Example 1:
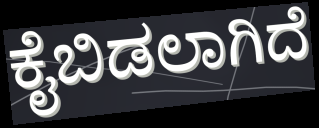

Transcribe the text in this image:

ಕೈಬಿಡಲಾಗಿದೆ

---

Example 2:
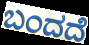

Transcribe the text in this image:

ಬಂದದೆ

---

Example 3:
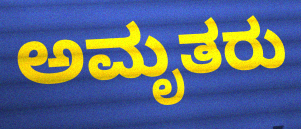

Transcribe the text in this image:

ಅಮೃತರು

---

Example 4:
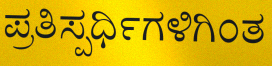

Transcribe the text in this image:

ಪ್ರತಿಸ್ಪರ್ಧಿಗಳಿಗಿಂತ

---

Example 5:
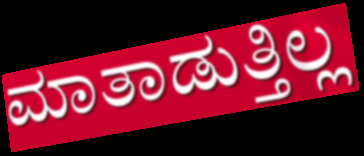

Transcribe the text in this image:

ಮಾತಾಡುತ್ತಿಲ್ಲ